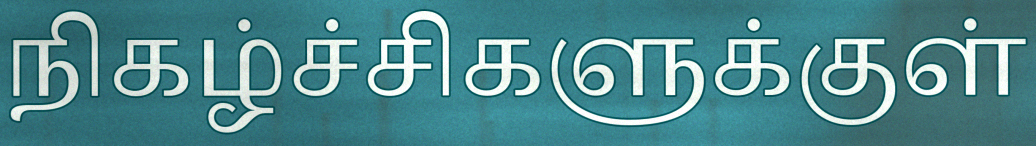
நிகழ்ச்சிகளுக்குள்